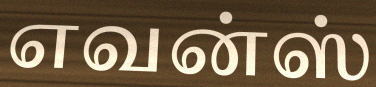
எவன்ஸ்